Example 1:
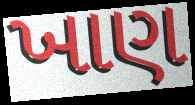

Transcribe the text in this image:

ખાણ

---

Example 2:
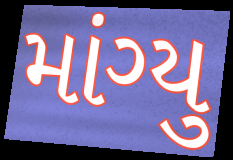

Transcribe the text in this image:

માંગ્યુ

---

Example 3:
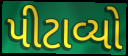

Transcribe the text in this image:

પીટાવ્યો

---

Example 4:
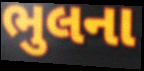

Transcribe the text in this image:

ભુલના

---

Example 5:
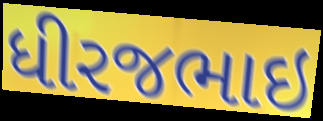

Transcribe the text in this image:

ધીરજભાઇ